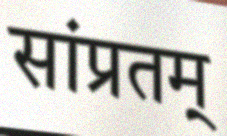
सांप्रतम्